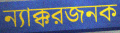
ন্যাক্করজনক